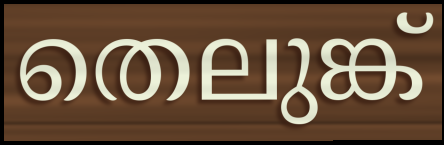
തെലുങ്ക്